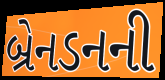
બ્રેનડનની